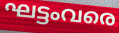
ഘട്ടംവരെ